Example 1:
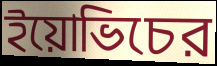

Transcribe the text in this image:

ইয়োভিচের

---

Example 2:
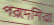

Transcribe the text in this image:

পরদেশিরা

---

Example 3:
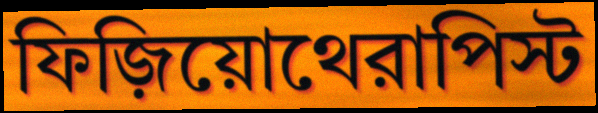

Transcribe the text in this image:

ফিজ়িয়োথেরাপিস্ট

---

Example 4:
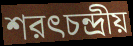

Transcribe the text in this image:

শরৎচন্দ্রীয়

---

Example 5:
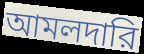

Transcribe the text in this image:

আমলদারি